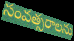
సంవత్సరాలను